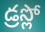
డ్రస్లో